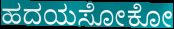
ಹದಯಸೋಕೋ